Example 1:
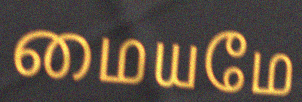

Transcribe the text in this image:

மையமே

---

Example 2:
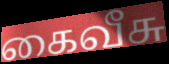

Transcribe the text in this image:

கைவீசு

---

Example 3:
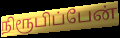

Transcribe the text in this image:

நிரூபிப்பேன்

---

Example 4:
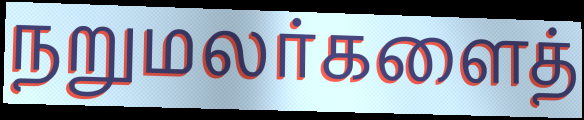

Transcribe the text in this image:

நறுமலர்களைத்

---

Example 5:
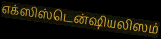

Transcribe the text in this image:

எக்ஸிஸ்டென்ஷியலிஸம்